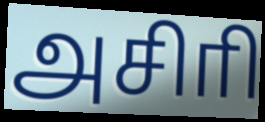
அசிரி